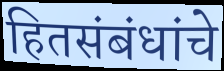
हितसंबंधांचे